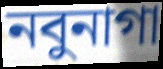
নবুনাগা